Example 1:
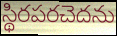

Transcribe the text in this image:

స్థిరపరచెదను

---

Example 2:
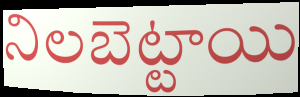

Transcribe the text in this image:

నిలబెట్టాయి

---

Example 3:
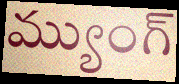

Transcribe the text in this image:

మ్యుంగ్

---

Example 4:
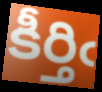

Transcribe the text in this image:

కీర్తిఁ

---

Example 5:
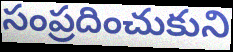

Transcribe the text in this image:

సంప్రదించుకుని